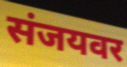
संजयवर